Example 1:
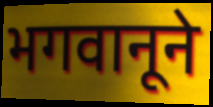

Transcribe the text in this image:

भगवानूने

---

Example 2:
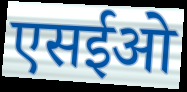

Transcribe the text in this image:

एसईओ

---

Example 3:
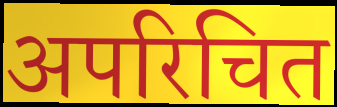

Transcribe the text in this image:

अपरिचित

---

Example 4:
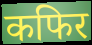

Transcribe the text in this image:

कफिर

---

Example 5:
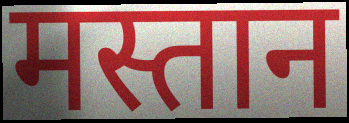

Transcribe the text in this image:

मस्तान